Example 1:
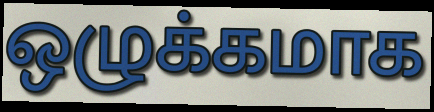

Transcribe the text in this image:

ஒழுக்கமாக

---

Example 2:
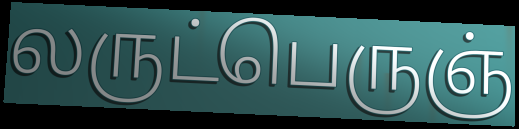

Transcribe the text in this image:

லருட்பெருஞ்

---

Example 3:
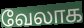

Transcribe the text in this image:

வேலாக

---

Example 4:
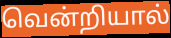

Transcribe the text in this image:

வென்றியால்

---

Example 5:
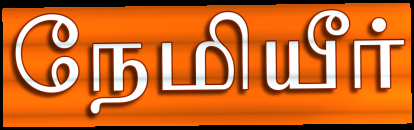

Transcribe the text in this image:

நேமியீர்